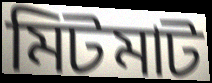
মিটমাট